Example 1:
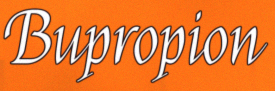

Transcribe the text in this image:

Bupropion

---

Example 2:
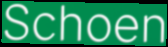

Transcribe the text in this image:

Schoen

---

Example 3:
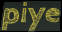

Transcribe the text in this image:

piye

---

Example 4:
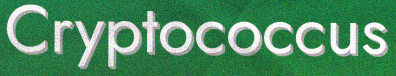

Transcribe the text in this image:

Cryptococcus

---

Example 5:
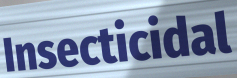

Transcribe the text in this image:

Insecticidal